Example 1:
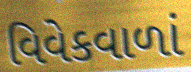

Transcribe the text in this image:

વિવેકવાળાં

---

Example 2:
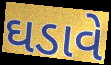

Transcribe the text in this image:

ઘડાવે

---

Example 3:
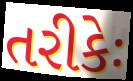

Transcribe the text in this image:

તરીકેઃ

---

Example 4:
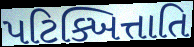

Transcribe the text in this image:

પટિક્ખિત્તાતિ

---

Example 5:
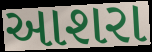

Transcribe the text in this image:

આશરા